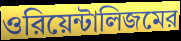
ওরিয়েন্টালিজমের